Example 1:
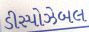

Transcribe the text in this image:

ડીસ્પોઝેબલ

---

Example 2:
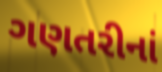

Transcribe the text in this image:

ગણતરીનાં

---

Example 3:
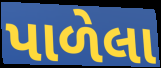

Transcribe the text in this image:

પાળેલા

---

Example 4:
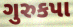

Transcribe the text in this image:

ગુરુકપા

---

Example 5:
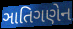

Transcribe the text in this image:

ઞાતિગણેન